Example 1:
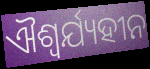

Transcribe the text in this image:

ଐଶ୍ଵର୍ଯ୍ୟହୀନ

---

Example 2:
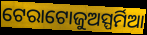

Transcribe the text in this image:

ଟେରାଟୋଜୁଅସ୍ପର୍ମିଆ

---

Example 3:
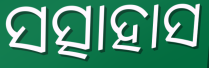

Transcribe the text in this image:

ସତ୍ସାହାସ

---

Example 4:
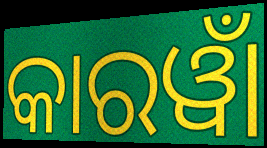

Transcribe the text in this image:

କାରୱାଁ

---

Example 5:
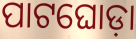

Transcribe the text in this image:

ପାଟଘୋଡ଼ା